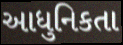
આધુનિકતા